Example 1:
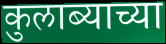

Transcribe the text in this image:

कुलाब्याच्या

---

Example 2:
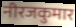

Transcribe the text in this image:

नीरजकुमार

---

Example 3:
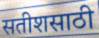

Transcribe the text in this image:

सतीशसाठी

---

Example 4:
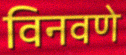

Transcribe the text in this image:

विनवणे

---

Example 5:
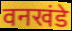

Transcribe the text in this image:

वनखंडे